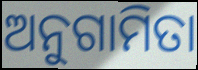
ଅନୁଗାମିତା